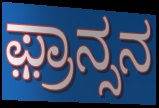
ಫ಼್ರಾನ್ಸನ